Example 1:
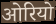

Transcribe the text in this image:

ओरियो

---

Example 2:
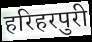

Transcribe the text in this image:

हरिहरपुरी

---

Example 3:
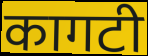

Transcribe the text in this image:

कागटी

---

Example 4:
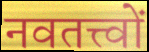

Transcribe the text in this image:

नवतत्त्वों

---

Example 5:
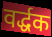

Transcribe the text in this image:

वर्द्धक